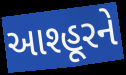
આશ્હૂરને